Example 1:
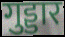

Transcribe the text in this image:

गुड्डार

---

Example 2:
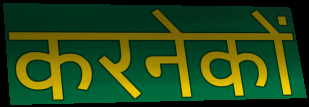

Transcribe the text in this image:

करनेकों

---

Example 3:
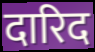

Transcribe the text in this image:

दारिद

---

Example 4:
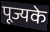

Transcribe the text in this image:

पूज्यके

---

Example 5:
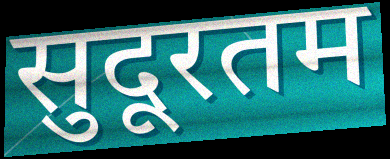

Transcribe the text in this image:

सुदूरतम